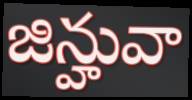
జిన్హువా